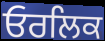
ਓਰਲਿਕ